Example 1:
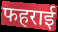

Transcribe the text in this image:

फहराई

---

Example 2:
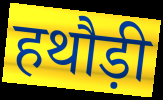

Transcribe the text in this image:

हथौड़ी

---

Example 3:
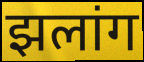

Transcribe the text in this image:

झलांग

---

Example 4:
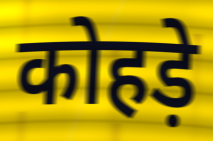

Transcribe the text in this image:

कोहड़े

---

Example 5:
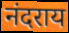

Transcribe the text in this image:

नंदराय